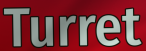
Turret